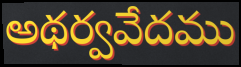
అథర్వవేదము